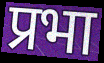
प्रभा